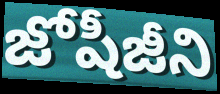
జోషీజీని